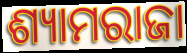
ଶ୍ୟାମରାଜା